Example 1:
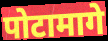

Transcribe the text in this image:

पोटामागे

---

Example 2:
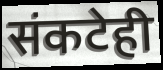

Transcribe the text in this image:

संकटेही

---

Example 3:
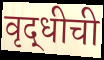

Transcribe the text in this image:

वृद्धीची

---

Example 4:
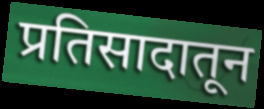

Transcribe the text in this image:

प्रतिसादातून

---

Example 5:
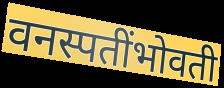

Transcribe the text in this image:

वनस्पतींभोवती